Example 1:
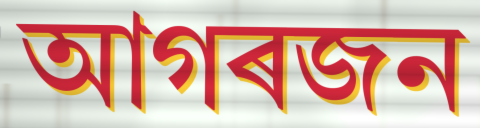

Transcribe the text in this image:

আগৰজন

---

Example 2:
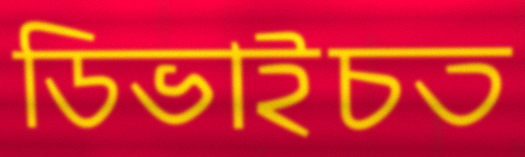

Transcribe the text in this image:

ডিভাইচত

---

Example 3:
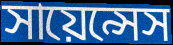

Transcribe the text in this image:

সায়েন্সেস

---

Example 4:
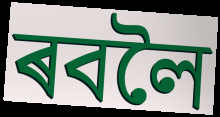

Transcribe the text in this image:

ৰবলৈ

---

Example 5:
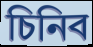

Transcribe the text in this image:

চিনিব